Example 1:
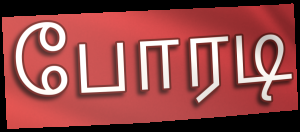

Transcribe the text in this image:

போரடி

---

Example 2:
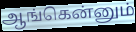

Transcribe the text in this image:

ஆங்கென்னும்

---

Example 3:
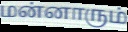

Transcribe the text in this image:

மன்னாரும்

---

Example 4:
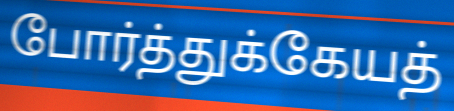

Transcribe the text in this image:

போர்த்துக்கேயத்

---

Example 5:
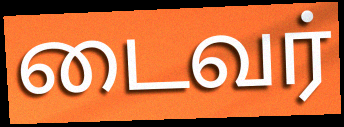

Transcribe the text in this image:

டைவர்